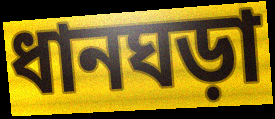
ধানঘড়া